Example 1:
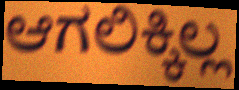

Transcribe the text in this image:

ಆಗಲಿಕ್ಕಿಲ್ಲ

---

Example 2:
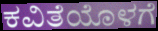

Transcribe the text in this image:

ಕವಿತೆಯೊಳಗೆ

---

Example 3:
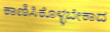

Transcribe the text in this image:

ಕಾಣಿಸಿಕೊಳ್ಳಬೇಕಾದ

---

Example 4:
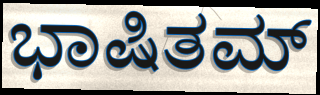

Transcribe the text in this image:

ಭಾಷಿತಮ್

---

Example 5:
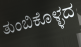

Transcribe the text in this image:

ತುಂಬಿಕೊಳ್ಳದ